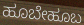
ಹೂಬೇಹೂಬ